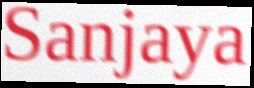
Sanjaya